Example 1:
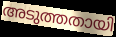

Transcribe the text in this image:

അടുത്തതായി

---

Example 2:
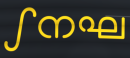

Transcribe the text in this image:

ഽനഘ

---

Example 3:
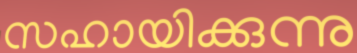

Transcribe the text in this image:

സഹായിക്കുന്നു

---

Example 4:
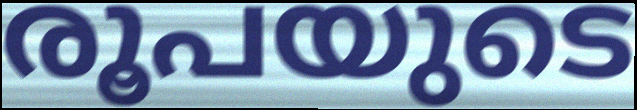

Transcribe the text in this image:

രൂപയുടെ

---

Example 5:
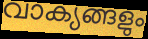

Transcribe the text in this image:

വാക്യങ്ങളും